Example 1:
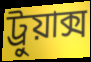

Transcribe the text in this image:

ট্রুয়াক্স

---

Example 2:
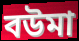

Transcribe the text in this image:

বউমা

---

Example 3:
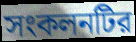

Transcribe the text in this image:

সংকলনটির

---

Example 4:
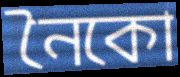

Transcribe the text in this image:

নৈকো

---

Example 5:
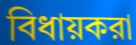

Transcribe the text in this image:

বিধায়করা